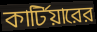
কার্টিয়ারের